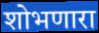
शोभणारा